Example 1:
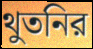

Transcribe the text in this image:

থুতনির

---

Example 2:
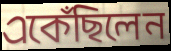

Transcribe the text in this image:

একেঁছিলেন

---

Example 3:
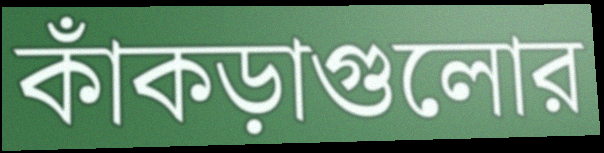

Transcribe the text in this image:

কাঁকড়াগুলোর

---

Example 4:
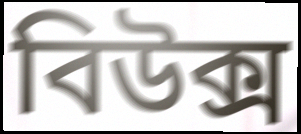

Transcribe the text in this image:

বিউক্স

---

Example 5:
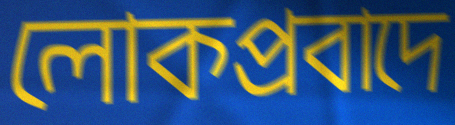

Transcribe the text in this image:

লোকপ্রবাদে